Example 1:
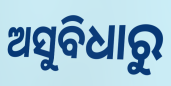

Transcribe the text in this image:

ଅସୁବିଧାରୁ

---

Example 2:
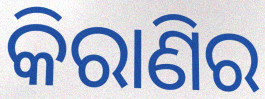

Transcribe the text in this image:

କିରାଣିର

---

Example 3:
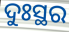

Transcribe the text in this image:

ଦୁଃସ୍ଥର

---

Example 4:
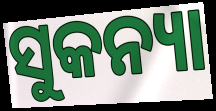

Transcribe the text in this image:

ସୁକନ୍ୟା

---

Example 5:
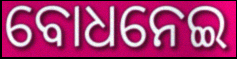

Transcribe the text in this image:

ବୋଧନେଇ